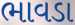
ભાવડા